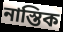
নাস্তিক